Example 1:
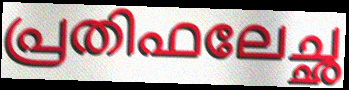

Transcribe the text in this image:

പ്രതിഫലേച്ഛ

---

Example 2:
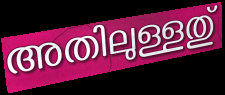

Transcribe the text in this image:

അതിലുള്ളതു്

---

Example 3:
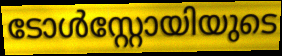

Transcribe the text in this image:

ടോൾസ്റ്റോയിയുടെ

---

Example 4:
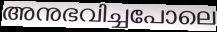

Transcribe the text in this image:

അനുഭവിച്ചപോലെ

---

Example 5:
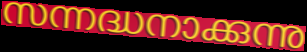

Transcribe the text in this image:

സന്നദ്ധനാക്കുന്നു